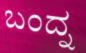
ಬಂದ್ನ